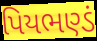
પિયભણ્ડં